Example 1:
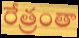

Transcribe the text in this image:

రేత్రంతా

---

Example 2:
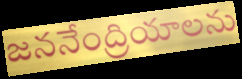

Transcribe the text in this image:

జననేంద్రియాలను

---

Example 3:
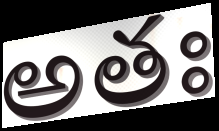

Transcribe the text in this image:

అతః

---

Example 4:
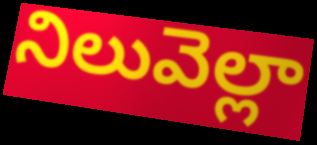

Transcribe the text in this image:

నిలువెల్లా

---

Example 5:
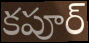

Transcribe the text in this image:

కపూర్